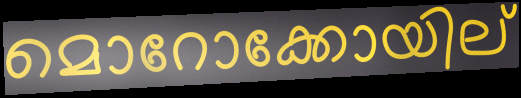
മൊറോക്കോയില്